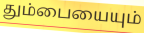
தும்பையையும்